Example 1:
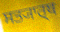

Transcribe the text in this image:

ਸਤ੍ਯਾਰ੍ਥ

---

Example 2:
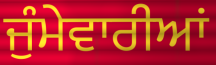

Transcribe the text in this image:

ਜੁੰਮੇਵਾਰੀਆਂ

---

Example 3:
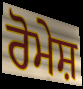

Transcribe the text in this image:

ਰੋਮੇਸ਼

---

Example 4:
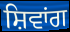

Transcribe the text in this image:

ਸ਼ਿਵਾਂਗ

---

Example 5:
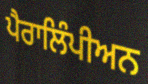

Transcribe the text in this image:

ਪੈਰਾਲਿੰਪੀਅਨ